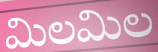
మిలమిల